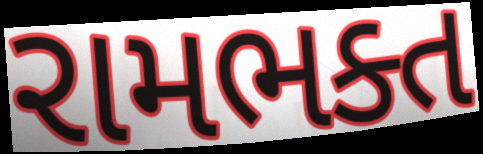
રામભક્ત